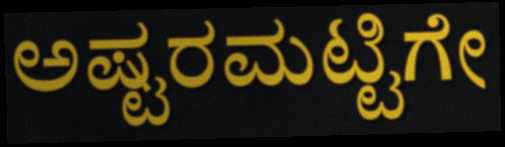
ಅಷ್ಟರಮಟ್ಟಿಗೇ